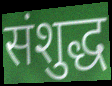
संशुद्ध